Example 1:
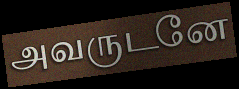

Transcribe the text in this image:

அவருடனே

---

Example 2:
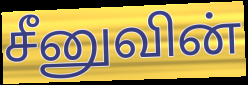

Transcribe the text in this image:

சீனுவின்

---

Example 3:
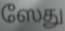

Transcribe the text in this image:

ஸேது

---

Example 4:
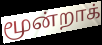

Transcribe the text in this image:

மூன்றாக்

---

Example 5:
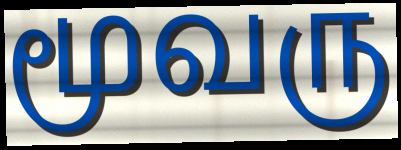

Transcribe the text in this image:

மூவரு